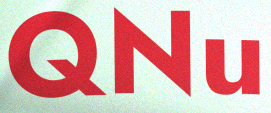
QNu